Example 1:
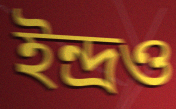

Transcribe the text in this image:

ইন্দ্রও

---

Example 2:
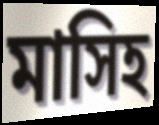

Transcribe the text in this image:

মাসিহ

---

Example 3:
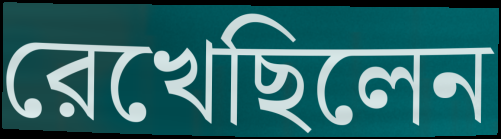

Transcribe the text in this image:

রেখেছিলেন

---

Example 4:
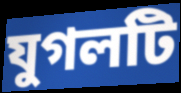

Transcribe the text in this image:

যুগলটি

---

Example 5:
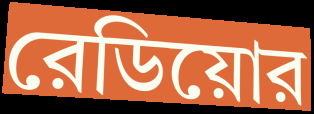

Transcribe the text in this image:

রেডিয়োর